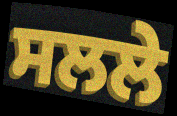
ਸਲਲੇ